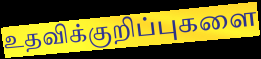
உதவிக்குறிப்புகளை